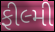
ફીલ્મી